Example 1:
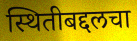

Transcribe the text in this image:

स्थितीबद्दलचा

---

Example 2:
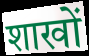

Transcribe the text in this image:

शाखों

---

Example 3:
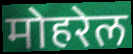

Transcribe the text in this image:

मोहरेल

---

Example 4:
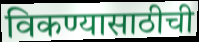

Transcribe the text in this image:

विकण्यासाठीची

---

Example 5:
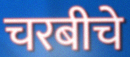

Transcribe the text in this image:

चरबीचे